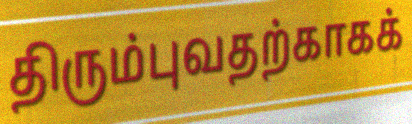
திரும்புவதற்காகக்